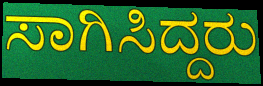
ಸಾಗಿಸಿದ್ದರು